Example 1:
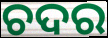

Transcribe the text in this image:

ଚଦର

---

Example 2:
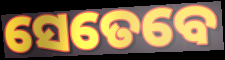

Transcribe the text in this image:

ସେତେବେ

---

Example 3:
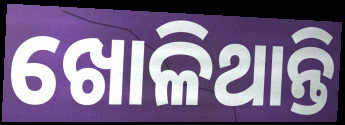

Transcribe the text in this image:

ଖୋଳିଥାନ୍ତି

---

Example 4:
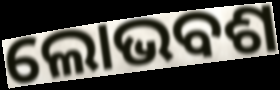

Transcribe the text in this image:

ଲୋଭବଶ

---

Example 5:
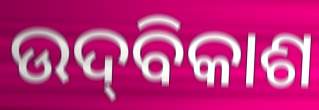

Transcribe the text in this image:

ଉଦ୍‌ବିକାଶ